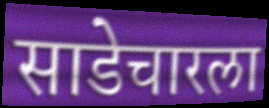
साडेचारला